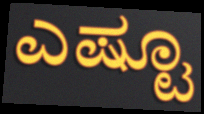
ಎಷ್ಟೂ